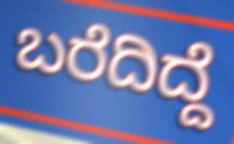
ಬರೆದಿದ್ದೆ